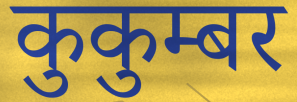
कुकुम्बर